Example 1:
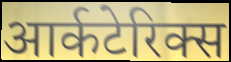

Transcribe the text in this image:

आर्कटेरिक्स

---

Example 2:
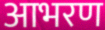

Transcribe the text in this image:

आभरण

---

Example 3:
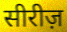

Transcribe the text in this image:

सीरीज़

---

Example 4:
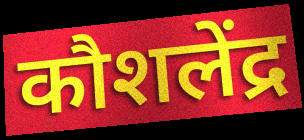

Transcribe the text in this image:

कौशलेंद्र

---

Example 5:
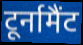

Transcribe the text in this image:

टूर्नामैंट